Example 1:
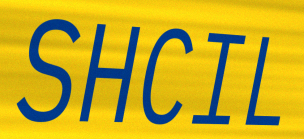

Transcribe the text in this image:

SHCIL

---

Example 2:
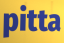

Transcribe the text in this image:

pitta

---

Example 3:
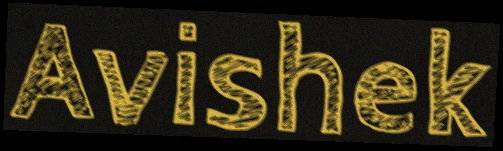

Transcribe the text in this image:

Avishek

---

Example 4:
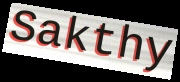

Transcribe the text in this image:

Sakthy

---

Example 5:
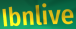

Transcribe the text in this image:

Ibnlive